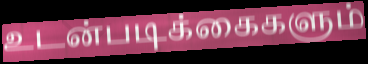
உடன்படிக்கைகளும்